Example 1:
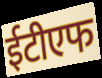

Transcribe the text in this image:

ईटीएफ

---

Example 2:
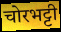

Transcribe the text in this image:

चोरभट्टी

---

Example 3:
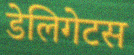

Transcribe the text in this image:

डेलिगेटस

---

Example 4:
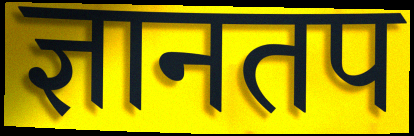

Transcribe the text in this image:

ज्ञानतप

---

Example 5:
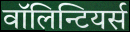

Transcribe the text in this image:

वॉलिन्टियर्स